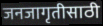
जनजागृतीसाठी